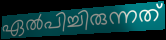
ഏൽപിച്ചിരുന്നത്